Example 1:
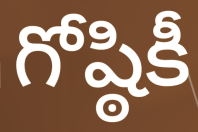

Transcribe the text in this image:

గోష్ఠికీ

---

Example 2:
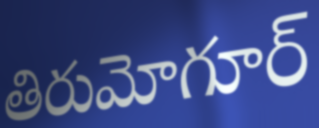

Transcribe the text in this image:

తిరుమోగూర్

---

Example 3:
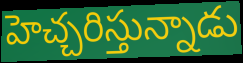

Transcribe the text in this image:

హెచ్చరిస్తున్నాడు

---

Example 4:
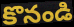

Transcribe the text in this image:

కొనండి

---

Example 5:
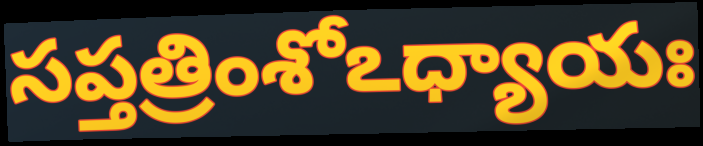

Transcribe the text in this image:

సప్తత్రింశోఽధ్యాయః